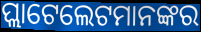
ପ୍ଲାଟେଲେଟମାନଙ୍କର